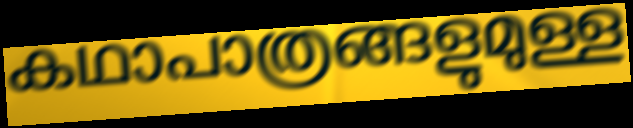
കഥാപാത്രങ്ങളുമുള്ള